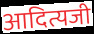
आदित्यजी